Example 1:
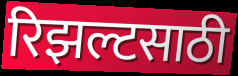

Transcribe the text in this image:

रिझल्टसाठी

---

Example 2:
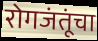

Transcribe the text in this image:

रोगजंतूंचा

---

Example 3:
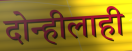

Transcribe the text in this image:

दोन्हीलाही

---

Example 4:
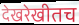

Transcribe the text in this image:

देखरेखीतच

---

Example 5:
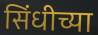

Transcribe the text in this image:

सिंधीच्या